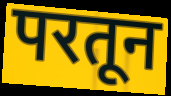
परतून